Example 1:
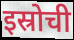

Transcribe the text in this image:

इस्रोची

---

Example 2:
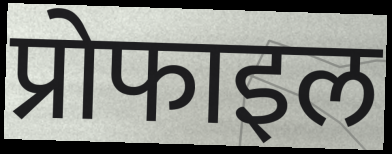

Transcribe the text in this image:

प्रोफाइल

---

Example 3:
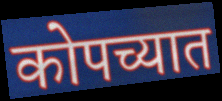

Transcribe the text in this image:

कोपच्यात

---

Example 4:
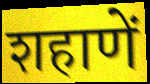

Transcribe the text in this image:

शहाणें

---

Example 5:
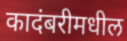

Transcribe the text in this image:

कादंबरीमधील